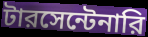
টারসেন্টেনারি